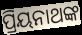
ପ୍ରିୟନାଥଙ୍କ